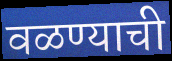
वळण्याची